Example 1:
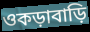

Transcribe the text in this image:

ওকড়াবাড়ি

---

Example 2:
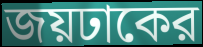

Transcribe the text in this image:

জয়ঢাকের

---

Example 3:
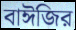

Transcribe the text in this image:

বাঈজির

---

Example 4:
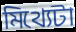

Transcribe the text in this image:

মিথ্যেটা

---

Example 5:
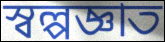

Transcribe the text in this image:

স্বল্পজ্ঞাত